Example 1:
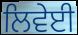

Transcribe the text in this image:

ਲਿਵੇਈ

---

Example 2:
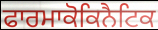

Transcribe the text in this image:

ਫਾਰਮਾਕੋਕਿਨੈਟਿਕ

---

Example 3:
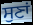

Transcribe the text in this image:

ਸੁਣਾਂ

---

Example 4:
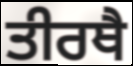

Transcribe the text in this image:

ਤੀਰਥੈ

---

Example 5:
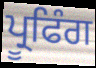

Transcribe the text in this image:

ਪ੍ਰੂਫਿੰਗ